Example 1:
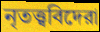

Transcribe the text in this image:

নৃতত্ত্ববিদেরা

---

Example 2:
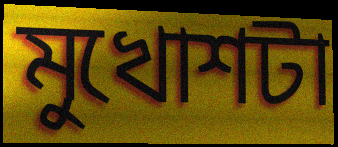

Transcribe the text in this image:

মুখোশটা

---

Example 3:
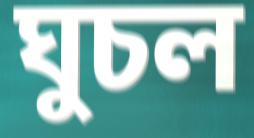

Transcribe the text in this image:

ঘুচল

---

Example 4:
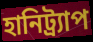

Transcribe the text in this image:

হানিট্র্যাপ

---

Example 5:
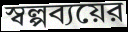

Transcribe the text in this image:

স্বল্পব্যয়ের